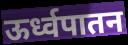
ऊर्ध्वपातन